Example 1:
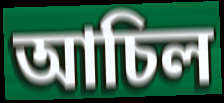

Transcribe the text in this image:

আচিল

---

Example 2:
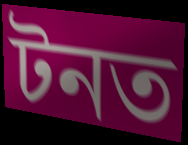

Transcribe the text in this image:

টনত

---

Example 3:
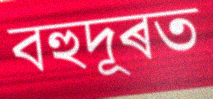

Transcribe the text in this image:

বহুদূৰত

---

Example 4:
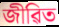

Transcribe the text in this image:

জীৱিত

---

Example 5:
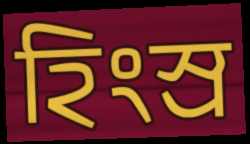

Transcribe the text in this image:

হিংস্ৰ